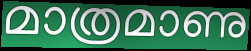
മാത്രമാണു